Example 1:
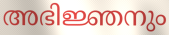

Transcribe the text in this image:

അഭിജ്ഞനും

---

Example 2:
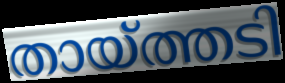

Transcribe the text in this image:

തായ്ത്തടി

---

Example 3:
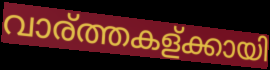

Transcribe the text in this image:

വാര്ത്തകള്ക്കായി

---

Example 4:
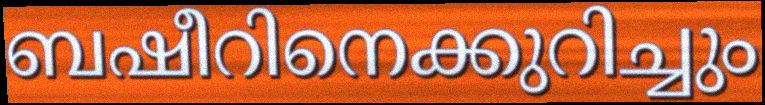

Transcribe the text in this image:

ബഷീറിനെക്കുറിച്ചും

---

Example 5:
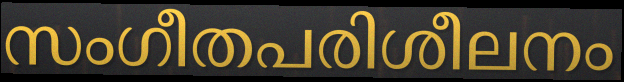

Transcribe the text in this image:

സംഗീതപരിശീലനം